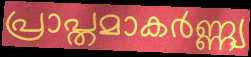
പ്രാപ്തമാകർണ്ണ്യ